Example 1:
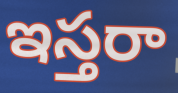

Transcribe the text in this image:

ఇస్తరా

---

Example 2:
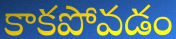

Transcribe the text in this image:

కాకపోవడం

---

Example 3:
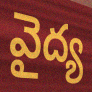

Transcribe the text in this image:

వైద్య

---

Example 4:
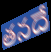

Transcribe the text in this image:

తనదే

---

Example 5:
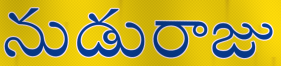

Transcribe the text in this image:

నుడురాజు